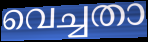
വെച്ചതാ